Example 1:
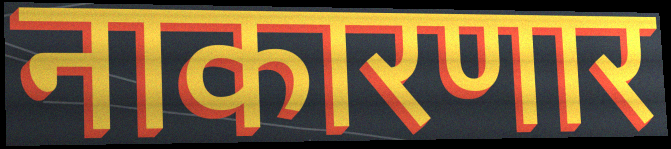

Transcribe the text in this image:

नाकारणार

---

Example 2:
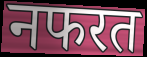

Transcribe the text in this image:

नफरत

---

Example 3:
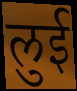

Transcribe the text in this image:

लुई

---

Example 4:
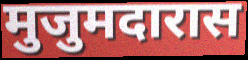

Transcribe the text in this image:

मुजुमदारास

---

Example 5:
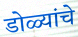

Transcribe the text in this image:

डोळ्यांचे